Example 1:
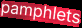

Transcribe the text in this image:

pamphlets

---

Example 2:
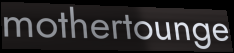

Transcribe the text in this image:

mothertounge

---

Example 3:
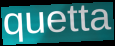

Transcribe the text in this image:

quetta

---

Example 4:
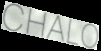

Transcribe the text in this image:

CHALO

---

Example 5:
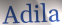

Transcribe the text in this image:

Adila